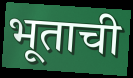
भूताची